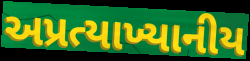
અપ્રત્યાખ્યાનીય